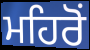
ਮਹਿਰੋਂ